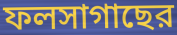
ফলসাগাছের